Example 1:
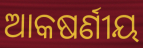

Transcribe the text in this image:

ଆକଷର୍ଣୀୟ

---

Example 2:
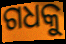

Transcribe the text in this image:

ଗଧକୁ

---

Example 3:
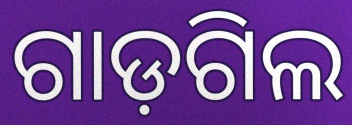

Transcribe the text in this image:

ଗାଡ଼ଗିଲ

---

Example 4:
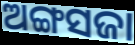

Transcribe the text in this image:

ଅଙ୍ଗସଜା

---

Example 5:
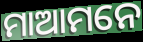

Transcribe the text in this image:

ମାଆମନେ